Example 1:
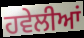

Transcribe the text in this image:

ਹਵੇਲੀਆਂ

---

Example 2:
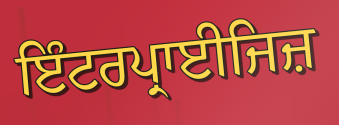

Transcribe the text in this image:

ਇੰਟਰਪ੍ਰਾਈਜਿਜ਼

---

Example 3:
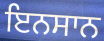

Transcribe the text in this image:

ਇਨਸਾਨ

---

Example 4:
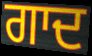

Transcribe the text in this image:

ਗਾਦ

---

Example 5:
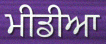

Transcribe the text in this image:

ਮੀਡੀਆ